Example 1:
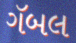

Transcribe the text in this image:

ગૅબલ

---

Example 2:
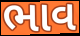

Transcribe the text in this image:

ભાવ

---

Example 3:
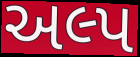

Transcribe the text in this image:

અલ્પ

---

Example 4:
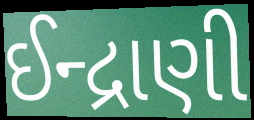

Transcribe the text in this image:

ઈન્દ્રાણી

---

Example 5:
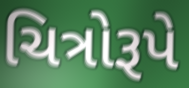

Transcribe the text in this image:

ચિત્રોરૂપે